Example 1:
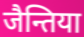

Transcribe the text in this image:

जैन्तिया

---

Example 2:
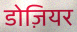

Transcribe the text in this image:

डोज़ियर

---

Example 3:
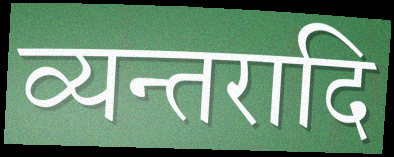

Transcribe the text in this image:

व्यन्तरादि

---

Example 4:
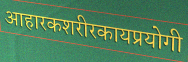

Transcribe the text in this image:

आहारकशरीरकायप्रयोगी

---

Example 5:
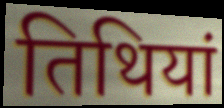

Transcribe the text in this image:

तिथियां